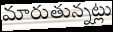
మారుతున్నట్లు